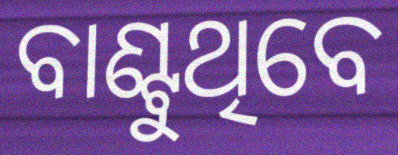
ବାଣ୍ଟୁଥିବେ